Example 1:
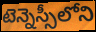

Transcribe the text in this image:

టెన్నెస్సీలోని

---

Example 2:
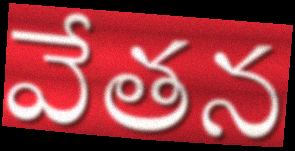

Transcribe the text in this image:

వేతన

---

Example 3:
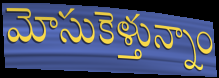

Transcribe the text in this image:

మోసుకెళ్తున్నాం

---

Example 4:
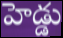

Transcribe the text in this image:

హెడ్డు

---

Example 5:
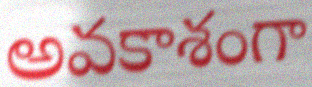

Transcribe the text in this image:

అవకాశంగా